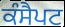
ਕੰਸੈਪਟ